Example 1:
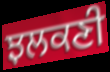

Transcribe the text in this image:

ਝਲਕਣੀ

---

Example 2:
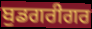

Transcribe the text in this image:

ਬੁਡਗਰੀਗਰ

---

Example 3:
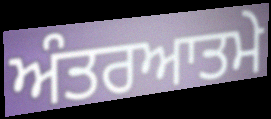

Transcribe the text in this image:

ਅੰਤਰਆਤਮੇ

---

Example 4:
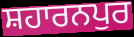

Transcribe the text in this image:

ਸ਼ਹਾਰਨਪੁਰ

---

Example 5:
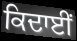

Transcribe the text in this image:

ਕਿਦਾਈਂ